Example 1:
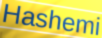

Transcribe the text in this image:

Hashemi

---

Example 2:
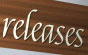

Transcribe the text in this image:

releases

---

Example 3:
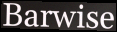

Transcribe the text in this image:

Barwise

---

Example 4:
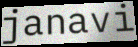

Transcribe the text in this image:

janavi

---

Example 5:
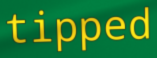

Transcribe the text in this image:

tipped